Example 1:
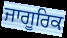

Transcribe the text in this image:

ਜਾਗੂਰਿਕ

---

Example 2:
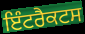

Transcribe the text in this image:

ਇੰਟਰੈਕਟਸ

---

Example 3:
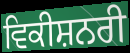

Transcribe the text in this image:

ਵਿਕੀਸ਼ਨਰੀ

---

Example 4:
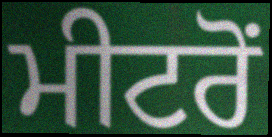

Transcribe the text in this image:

ਮੀਟਰੋਂ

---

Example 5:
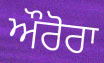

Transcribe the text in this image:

ਔਰੋਰਾ